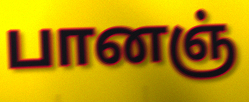
பானஞ்